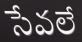
సేవలే